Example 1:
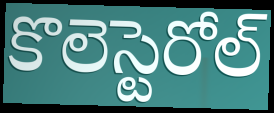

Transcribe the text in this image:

కొలెస్టెరోల్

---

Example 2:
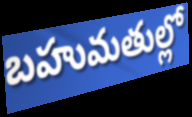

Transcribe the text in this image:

బహుమతుల్లో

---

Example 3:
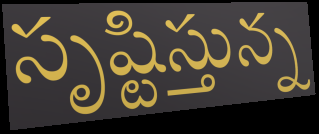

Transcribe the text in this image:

సృష్టిస్తున్న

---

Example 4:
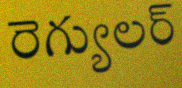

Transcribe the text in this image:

రెగ్యులర్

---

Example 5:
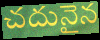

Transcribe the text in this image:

చదునైన